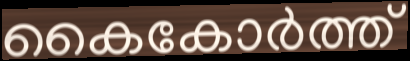
കൈകോർത്ത്